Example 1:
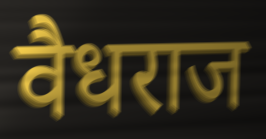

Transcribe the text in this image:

वैधराज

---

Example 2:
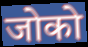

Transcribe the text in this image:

जोको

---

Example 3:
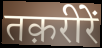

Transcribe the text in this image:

तक़रीरें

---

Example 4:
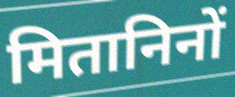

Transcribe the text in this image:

मितानिनों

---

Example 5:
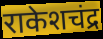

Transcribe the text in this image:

राकेशचंद्र